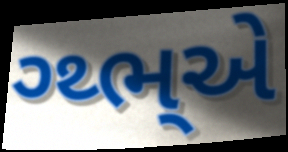
ગ્થ્ભ્એ